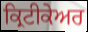
ਕ੍ਰਿਟੀਕੇਅਰ